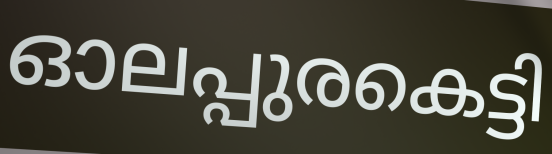
ഓലപ്പുരകെട്ടി